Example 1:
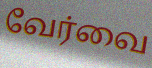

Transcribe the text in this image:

வேர்வை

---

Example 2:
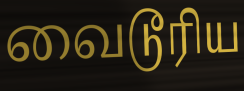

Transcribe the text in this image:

வைடூரிய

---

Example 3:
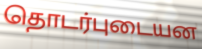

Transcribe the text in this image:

தொடர்புடையன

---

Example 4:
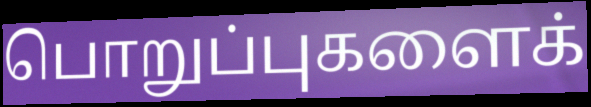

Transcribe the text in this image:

பொறுப்புகளைக்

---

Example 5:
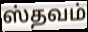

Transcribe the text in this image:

ஸ்தவம்